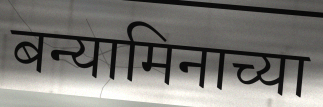
बन्यामिनाच्या